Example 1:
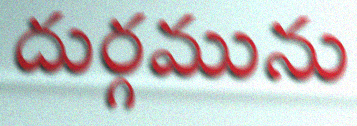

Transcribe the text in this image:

దుర్గమును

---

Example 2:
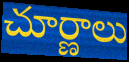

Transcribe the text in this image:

చూర్ణాలు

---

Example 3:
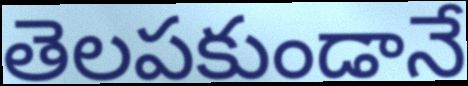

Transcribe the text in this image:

తెలపకుండానే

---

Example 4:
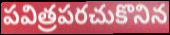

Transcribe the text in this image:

పవిత్రపరచుకొనిన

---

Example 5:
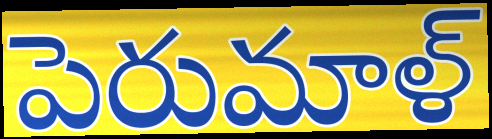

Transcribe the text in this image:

పెరుమాళ్